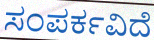
ಸಂಪರ್ಕವಿದೆ